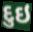
દુઇ